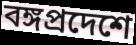
বঙ্গপ্রদেশে